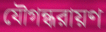
যৌগন্ধরায়ণ